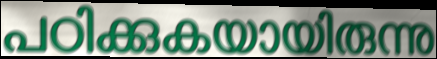
പഠിക്കുകയായിരുന്നു